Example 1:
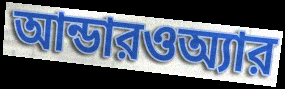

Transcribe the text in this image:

আন্ডারওঅ্যার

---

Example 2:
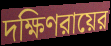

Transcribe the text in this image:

দক্ষিণরায়ের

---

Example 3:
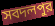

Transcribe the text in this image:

সবদলপুর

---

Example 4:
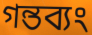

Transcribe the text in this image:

গন্তব্যং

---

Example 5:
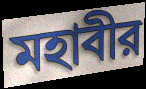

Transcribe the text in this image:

মহাবীর